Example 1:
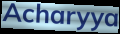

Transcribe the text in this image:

Acharyya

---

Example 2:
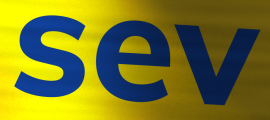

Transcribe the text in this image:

sev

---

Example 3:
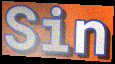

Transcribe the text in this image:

Sin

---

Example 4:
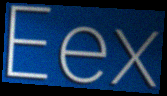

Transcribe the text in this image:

Eex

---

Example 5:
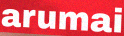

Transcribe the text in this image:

arumai